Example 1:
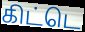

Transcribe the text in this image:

கிட்டெ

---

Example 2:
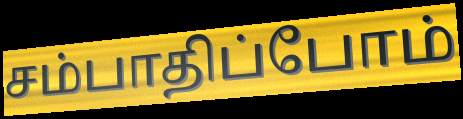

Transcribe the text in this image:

சம்பாதிப்போம்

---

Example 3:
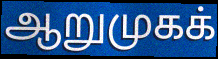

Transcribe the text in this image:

ஆறுமுகக்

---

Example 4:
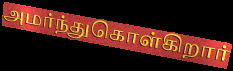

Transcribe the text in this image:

அமர்ந்துகொள்கிறார்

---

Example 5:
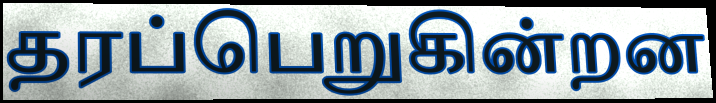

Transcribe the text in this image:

தரப்பெறுகின்றன